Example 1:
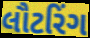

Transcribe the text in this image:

લૌટરિંગ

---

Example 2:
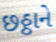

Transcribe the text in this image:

છઠ્ઠાને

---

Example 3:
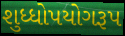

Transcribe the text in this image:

શુધ્ધોપયોગરૂપ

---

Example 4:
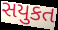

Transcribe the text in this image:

સયુકત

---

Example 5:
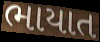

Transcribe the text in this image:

ભાયાત